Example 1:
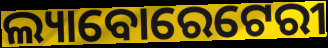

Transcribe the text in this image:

ଲ୍ୟାବୋରେଟେରୀ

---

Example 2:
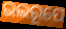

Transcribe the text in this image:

ଭଲରୂପେ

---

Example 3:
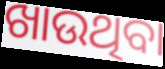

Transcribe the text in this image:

ଖାଉଥିବା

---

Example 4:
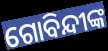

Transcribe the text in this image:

ଗୋବିନ୍ଦୀଙ୍କ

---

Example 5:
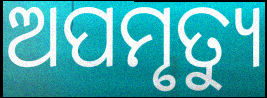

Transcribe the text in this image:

ଅପମୃତ୍ୟୁ